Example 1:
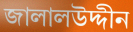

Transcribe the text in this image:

জালালউদ্দীন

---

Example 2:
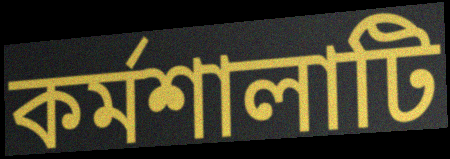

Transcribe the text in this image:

কর্মশালাটি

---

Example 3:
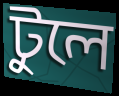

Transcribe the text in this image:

টুলে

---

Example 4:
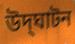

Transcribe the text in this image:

উদ্‌ঘাটন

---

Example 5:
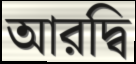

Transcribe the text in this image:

আরদ্বি